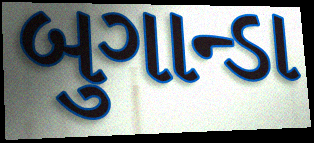
બુગાન્ડા